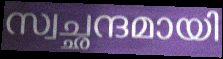
സ്വച്ഛന്ദമായി